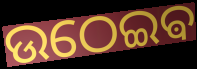
ଉଠେଇଵ